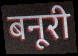
बनूरी